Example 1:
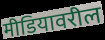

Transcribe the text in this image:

मीडियावरील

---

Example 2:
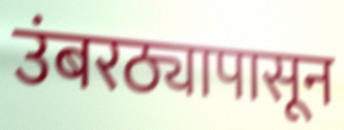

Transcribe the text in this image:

उंबरठ्यापासून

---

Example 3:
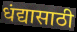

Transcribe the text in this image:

धंद्यासाठी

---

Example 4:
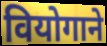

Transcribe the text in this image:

वियोगाने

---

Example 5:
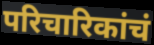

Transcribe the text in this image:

परिचारिकांचं